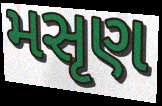
મસૃણ